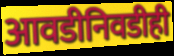
आवडीनिवडीही